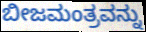
ಬೀಜಮಂತ್ರವನ್ನು